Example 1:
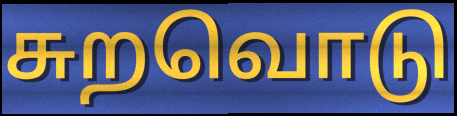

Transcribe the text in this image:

சுறவொடு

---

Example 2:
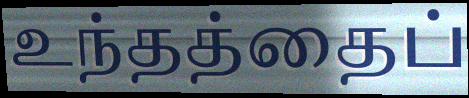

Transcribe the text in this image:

உந்தத்தைப்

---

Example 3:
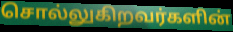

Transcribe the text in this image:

சொல்லுகிறவர்களின்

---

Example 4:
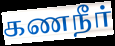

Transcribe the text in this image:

கணநீர்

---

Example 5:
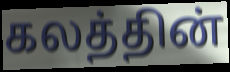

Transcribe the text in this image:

கலத்தின்